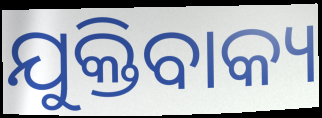
ଯୁକ୍ତିବାକ୍ୟ